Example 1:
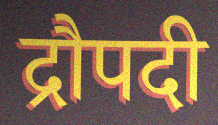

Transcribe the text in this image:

द्रौपदी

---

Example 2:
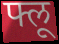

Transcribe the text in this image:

फ्लू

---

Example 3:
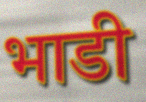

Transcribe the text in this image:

भाडी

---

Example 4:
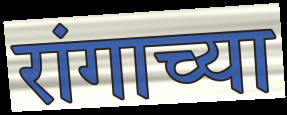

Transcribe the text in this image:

रांगाच्या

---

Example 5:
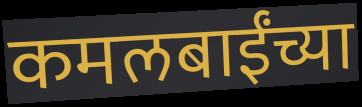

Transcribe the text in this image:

कमलबाईंच्या